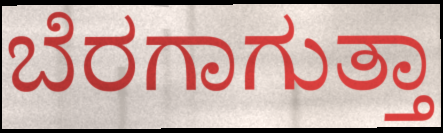
ಬೆರಗಾಗುತ್ತಾ